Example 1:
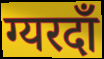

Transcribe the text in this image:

ग्यरदाँ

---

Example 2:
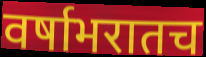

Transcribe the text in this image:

वर्षाभरातच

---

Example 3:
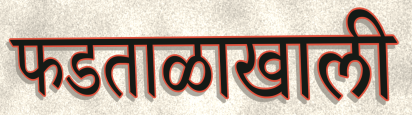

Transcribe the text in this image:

फडताळाखाली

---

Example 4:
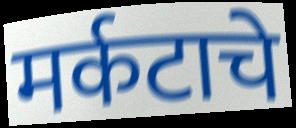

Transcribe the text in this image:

मर्कटाचे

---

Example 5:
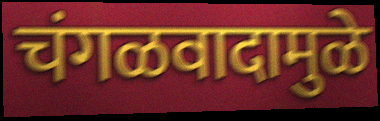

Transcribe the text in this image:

चंगळवादामुळे